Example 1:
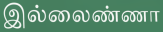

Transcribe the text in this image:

இல்லைண்ணா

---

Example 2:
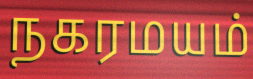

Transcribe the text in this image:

நகரமயம்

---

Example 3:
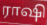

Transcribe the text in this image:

ராஷி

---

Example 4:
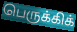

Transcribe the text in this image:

பெருக்கிக்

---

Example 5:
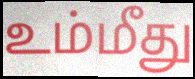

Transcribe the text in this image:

உம்மீது